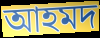
আহমদ